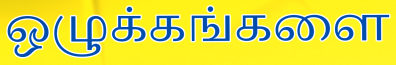
ஒழுக்கங்களை